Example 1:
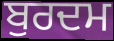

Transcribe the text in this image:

ਬੁਰਦਮ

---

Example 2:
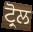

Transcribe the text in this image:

ਟ੍ਰੋਲ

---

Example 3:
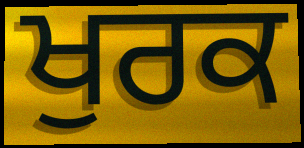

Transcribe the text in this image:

ਖੁਰਕ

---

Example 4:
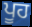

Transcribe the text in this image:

ਪੂਹ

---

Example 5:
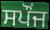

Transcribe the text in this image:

ਸਪੌਂਜ